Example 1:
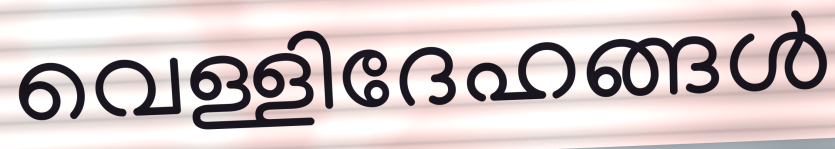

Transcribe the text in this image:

വെള്ളിദേഹങ്ങൾ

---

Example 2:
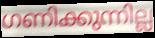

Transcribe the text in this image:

ഗണിക്കുന്നില്ല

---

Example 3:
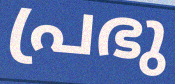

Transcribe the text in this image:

പ്രഭു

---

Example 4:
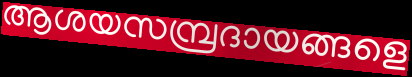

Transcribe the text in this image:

ആശയസമ്പ്രദായങ്ങളെ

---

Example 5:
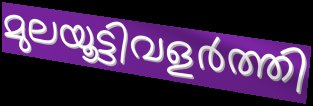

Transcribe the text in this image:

മുലയൂട്ടിവളർത്തി